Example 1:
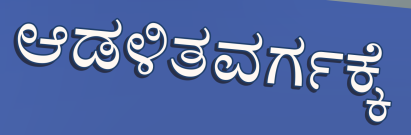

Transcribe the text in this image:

ಆಡಳಿತವರ್ಗಕ್ಕೆ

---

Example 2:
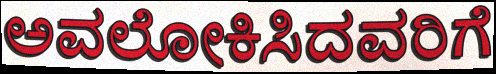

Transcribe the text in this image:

ಅವಲೋಕಿಸಿದವರಿಗೆ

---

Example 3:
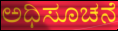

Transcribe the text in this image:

ಅಧಿಸೂಚನೆ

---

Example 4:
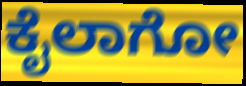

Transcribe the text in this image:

ಕೈಲಾಗೋ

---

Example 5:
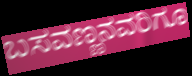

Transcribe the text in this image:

ಬಸವಣ್ಣನವರಿಗೂ